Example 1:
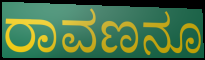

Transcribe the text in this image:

ರಾವಣನೂ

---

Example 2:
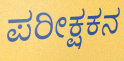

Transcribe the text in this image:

ಪರೀಕ್ಷಕನ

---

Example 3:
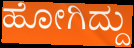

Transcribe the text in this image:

ಹೋಗಿದ್ದು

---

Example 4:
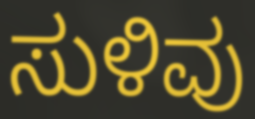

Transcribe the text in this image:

ಸುಳಿವು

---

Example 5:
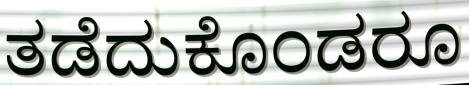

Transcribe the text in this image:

ತಡೆದುಕೊಂಡರೂ